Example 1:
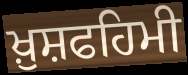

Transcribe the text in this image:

ਖ਼ੁਸ਼ਫਹਿਮੀ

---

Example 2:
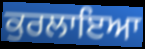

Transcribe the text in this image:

ਕੁਰਲਾਇਆ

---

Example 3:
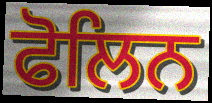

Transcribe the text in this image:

ਫੋਲਿਨ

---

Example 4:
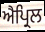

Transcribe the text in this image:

ਐਪ੍ਰਿਲ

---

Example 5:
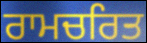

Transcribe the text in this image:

ਰਾਮਚਰਿਤ